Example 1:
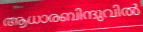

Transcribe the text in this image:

ആധാരബിന്ദുവിൽ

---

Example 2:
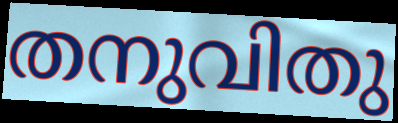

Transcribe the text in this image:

തനുവിതു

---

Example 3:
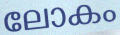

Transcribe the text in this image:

ലോകം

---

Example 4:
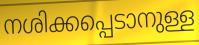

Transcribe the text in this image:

നശിക്കപ്പെടാനുള്ള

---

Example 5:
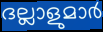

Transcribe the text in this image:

ദല്ലാളുമാർ